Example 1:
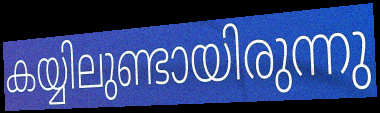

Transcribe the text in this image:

കയ്യിലുണ്ടായിരുന്നു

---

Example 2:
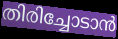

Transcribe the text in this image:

തിരിച്ചോടാൻ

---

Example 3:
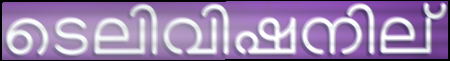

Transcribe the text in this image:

ടെലിവിഷനില്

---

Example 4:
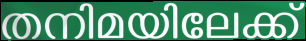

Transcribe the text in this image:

തനിമയിലേക്ക്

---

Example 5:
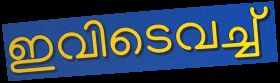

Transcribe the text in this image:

ഇവിടെവച്ച്